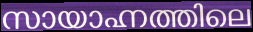
സായാഹ്നത്തിലെ